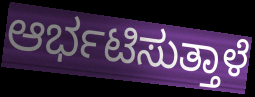
ಆರ್ಭಟಿಸುತ್ತಾಳೆ